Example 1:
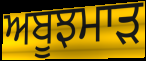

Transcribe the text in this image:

ਅਬੂਝਮਾੜ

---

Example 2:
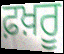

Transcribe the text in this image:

ਫ਼ਖ਼ਰੂ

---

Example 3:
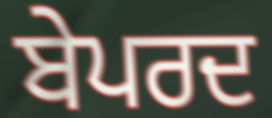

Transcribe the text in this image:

ਬੇਪਰਦ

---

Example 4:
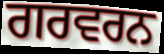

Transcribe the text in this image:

ਗਰਵਰਨ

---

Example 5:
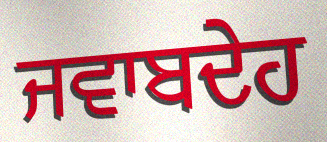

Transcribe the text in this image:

ਜਵਾਬਦੇਹ